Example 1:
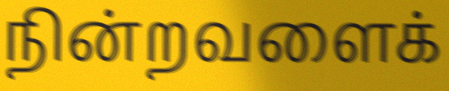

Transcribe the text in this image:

நின்றவளைக்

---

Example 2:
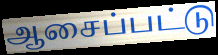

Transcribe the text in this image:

ஆசைப்பட்டு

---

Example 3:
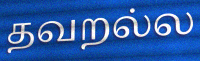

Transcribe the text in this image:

தவறல்ல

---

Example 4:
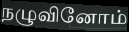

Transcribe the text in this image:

நழுவினோம்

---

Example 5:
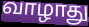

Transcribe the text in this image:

வாழாது